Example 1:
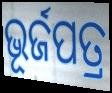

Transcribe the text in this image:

ଭୂର୍ଜପତ୍ର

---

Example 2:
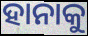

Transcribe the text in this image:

ହାନାକୁ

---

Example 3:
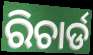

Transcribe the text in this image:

ରିଚାର୍ଡ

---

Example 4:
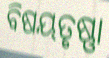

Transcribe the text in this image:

ବିଷୟତୃଷ୍ଣା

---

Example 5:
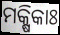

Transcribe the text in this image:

ମକ୍ଷିକାଃ